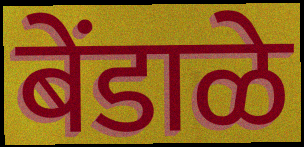
बेंडाळे